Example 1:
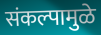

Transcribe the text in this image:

संकल्पामुळे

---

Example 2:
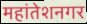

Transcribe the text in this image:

महांतेशनगर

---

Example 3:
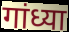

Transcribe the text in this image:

गांध्या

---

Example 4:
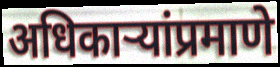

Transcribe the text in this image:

अधिकाऱ्यांप्रमाणे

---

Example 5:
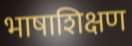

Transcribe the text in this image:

भाषाशिक्षण